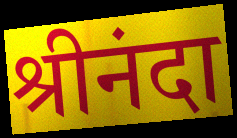
श्रीनंदा